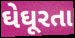
ઘેઘૂરતા